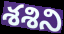
శశిని